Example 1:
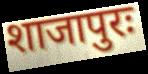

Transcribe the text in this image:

शाजापुरः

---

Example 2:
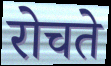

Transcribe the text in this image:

रोचते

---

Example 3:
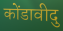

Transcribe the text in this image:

कोंडावीदु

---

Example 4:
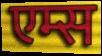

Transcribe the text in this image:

एम्‍स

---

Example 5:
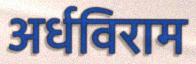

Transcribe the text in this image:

अर्धविराम